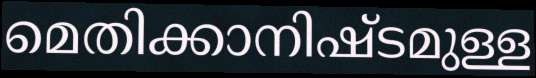
മെതിക്കാനിഷ്ടമുള്ള